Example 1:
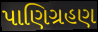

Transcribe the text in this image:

પાણિગ્રહણ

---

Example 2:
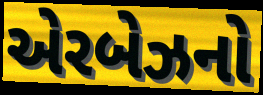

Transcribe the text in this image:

એરબેઝનો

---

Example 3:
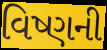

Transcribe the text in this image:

વિષ્ણની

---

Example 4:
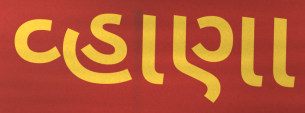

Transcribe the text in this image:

વ્હાણા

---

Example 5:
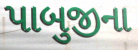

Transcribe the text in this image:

પાબુજીના